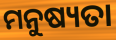
ମନୁଷ୍ୟତା